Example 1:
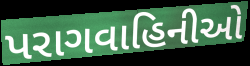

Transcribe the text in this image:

પરાગવાહિનીઓ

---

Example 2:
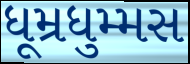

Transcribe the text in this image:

ધૂમ્રધુમ્મસ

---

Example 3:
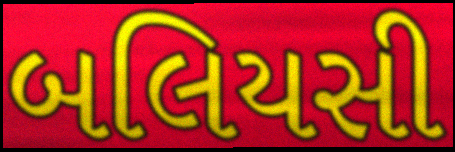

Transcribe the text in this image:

બલિયસી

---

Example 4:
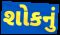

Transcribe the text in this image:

શોકનું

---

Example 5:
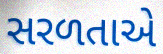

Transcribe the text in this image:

સરળતાએ